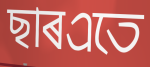
ছাৰএতে